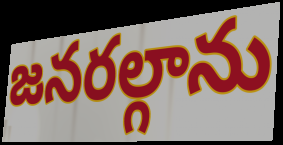
జనరల్గాను